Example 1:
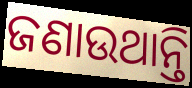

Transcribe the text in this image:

ଜଣାଉଥାନ୍ତି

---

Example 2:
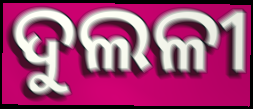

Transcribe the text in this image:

ଦୁଲଳୀ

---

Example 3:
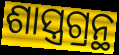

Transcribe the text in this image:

ଶାସ୍ତ୍ରଗ୍ରନ୍ଥ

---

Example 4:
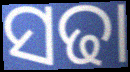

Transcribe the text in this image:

ସଢା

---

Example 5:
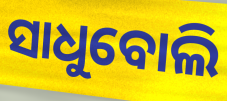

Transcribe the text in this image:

ସାଧୁବୋଲି